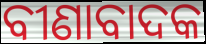
ବୀଣାବାଦକ